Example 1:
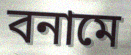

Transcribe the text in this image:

বনামে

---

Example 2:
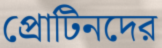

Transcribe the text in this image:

প্রোটিনদের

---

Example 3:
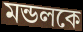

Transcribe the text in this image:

মন্ডলকে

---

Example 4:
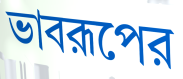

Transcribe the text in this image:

ভাবরূপের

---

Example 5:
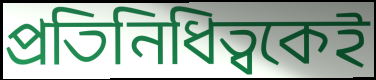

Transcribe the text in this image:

প্রতিনিধিত্বকেই